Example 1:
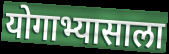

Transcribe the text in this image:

योगाभ्यासाला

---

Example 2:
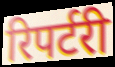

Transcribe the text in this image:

रिपर्टरी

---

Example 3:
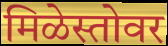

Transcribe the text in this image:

मिळेस्तोवर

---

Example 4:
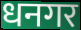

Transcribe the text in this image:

धनगर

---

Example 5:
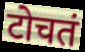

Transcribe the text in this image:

टोचतं